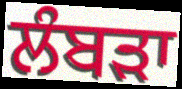
ਲੰਬੜਾ